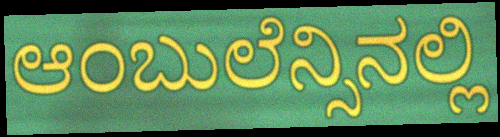
ಆಂಬುಲೆನ್ಸಿನಲ್ಲಿ